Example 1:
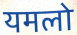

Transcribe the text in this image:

यमलो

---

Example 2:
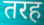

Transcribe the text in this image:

तरह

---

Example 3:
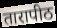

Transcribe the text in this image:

तारापीठ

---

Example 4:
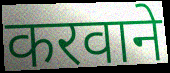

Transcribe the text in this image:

करवाने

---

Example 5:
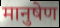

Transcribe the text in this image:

मानुषेण